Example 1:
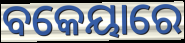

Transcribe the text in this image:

ବକେୟାରେ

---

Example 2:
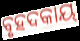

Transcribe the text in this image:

ବୃହଦକାୟ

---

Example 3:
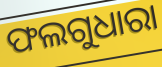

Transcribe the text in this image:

ଫଲଗୁଧାରା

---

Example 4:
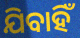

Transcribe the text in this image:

ଯିବାହିଁ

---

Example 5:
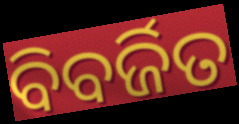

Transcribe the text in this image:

ବିବର୍ଜିତ